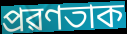
প্ৰৱণতাক